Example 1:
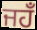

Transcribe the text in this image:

ਜਹਁ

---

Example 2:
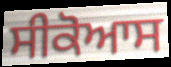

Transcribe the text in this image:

ਸੀਕੋਆਸ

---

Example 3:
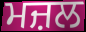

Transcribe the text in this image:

ਮਜ਼ਲ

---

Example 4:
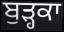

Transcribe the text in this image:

ਬੁੜ੍ਹਕਾ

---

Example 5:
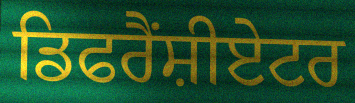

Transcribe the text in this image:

ਡਿਫਰੈਂਸ਼ੀਏਟਰ